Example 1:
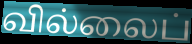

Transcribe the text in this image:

வில்லைப்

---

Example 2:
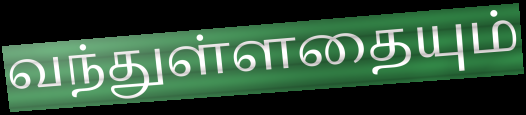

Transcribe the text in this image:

வந்துள்ளதையும்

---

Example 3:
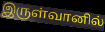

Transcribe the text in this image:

இருள்வானில்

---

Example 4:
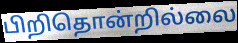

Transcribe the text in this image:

பிறிதொன்றில்லை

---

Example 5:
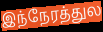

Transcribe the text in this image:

இந்நேரத்துல